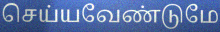
செய்யவேண்டுமே